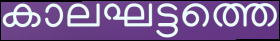
കാലഘട്ടത്തെ